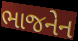
ભાજનેન